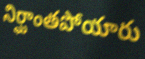
నిర్ఘాంతపోయారు